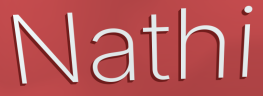
Nathi